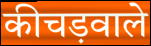
कीचड़वाले